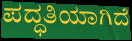
ಪದ್ಧತಿಯಾಗಿದೆ